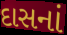
દાસનાં